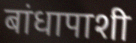
बांधापाशी